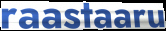
raastaaru